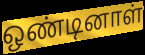
ஒண்டினாள்